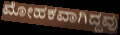
ಮೋಹಕವಾಗಿದ್ದವು